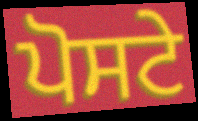
ਪੋਸਟੇ